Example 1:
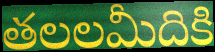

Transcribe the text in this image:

తలలమీదికి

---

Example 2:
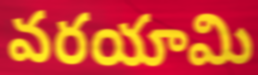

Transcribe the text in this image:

వరయామి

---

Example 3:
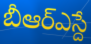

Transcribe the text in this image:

బీఆర్ఎస్దే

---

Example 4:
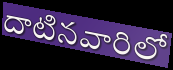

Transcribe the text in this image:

దాటినవారిలో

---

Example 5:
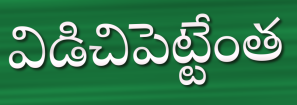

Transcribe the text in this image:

విడిచిపెట్టేంత